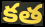
కత